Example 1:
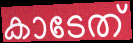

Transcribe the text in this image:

കാടേത്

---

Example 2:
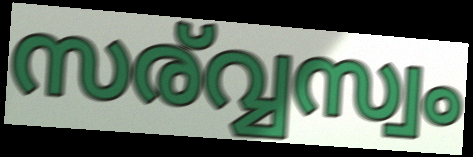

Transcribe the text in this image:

സര്വ്വസ്വം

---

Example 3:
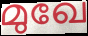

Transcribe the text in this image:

മുഖേ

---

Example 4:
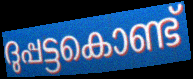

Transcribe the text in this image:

ദുപ്പട്ടകൊണ്ട്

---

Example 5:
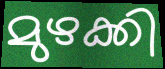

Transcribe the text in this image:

മുഴക്കി